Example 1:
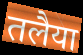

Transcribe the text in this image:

तलैया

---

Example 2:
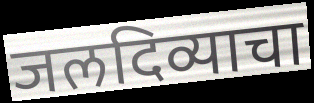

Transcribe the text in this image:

जलदिव्याचा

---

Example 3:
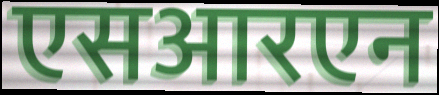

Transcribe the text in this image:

एसआरएन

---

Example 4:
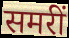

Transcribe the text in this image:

समरीं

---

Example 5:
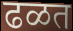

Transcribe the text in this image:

ढळत